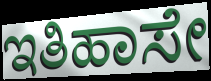
ಇತಿಹಾಸೇ